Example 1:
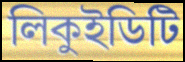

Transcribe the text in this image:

লিকুইডিটি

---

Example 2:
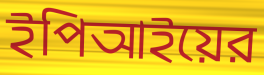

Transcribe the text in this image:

ইপিআইয়ের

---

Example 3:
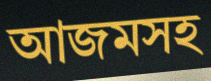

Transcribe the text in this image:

আজমসহ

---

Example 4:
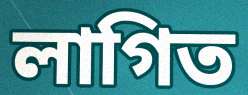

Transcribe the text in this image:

লাগিত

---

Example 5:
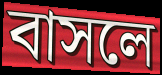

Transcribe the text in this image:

বাসলে